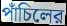
পাঁচিলের